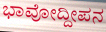
ಭಾವೋದ್ದೀಪನ